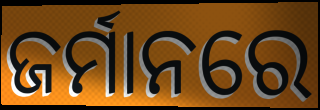
ଜର୍ମାନରେ